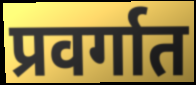
प्रवर्गात